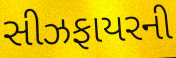
સીઝફાયરની